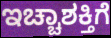
ಇಚ್ಚಾಶಕ್ತಿಗೆ